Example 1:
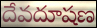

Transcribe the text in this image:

దేవదూషణ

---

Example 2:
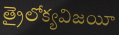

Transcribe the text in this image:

త్రైలోక్యవిజయీ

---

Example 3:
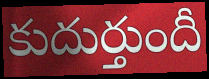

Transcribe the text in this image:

కుదుర్తుందీ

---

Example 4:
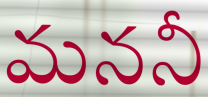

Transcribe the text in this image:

మననీ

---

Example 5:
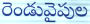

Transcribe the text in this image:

రెండువైపుల